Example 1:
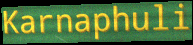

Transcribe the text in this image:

Karnaphuli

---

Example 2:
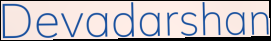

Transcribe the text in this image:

Devadarshan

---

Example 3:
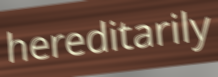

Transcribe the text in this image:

hereditarily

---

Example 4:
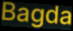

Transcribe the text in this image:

Bagda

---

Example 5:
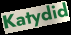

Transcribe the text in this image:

Katydid